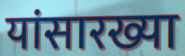
यांसारख्या